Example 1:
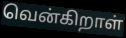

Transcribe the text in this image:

வென்கிறாள்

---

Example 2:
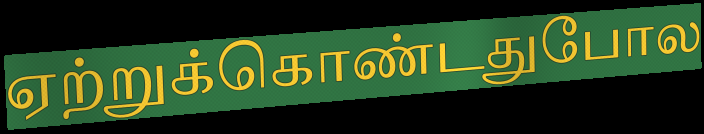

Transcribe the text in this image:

ஏற்றுக்கொண்டதுபோல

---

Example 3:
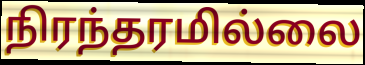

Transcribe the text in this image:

நிரந்தரமில்லை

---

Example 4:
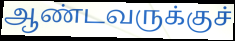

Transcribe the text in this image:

ஆண்டவருக்குச்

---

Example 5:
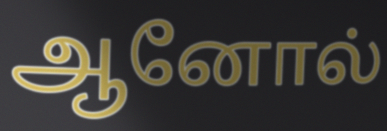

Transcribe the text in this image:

ஆனோல்